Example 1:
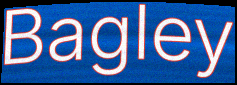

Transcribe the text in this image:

Bagley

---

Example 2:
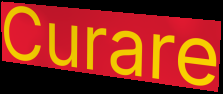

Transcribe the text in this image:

Curare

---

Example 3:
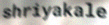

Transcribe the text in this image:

shriyakale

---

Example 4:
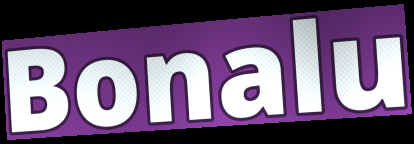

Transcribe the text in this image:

Bonalu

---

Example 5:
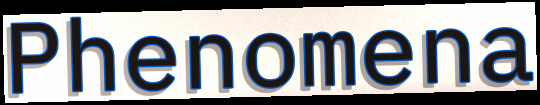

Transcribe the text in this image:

Phenomena